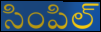
సింపిల్